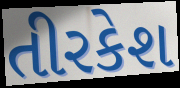
તીરકેશ